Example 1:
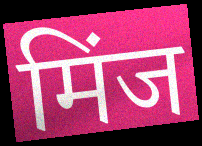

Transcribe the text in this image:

मिंज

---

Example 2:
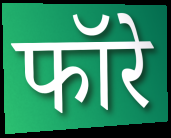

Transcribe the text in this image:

फॉरे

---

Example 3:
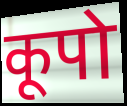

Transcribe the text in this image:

कूपो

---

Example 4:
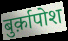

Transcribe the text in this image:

बुर्क़ापोश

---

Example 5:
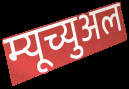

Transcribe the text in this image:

म्यूच्युअल